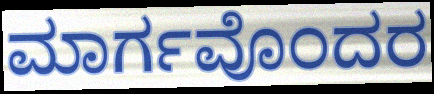
ಮಾರ್ಗವೊಂದರ